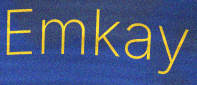
Emkay